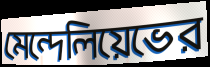
মেন্দেলিয়েভের